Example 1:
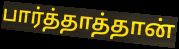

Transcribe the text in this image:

பார்த்தாத்தான்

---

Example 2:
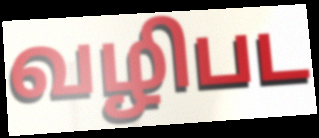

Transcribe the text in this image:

வழிபட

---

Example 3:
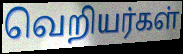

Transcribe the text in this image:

வெறியர்கள்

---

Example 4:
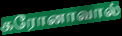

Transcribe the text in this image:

கரோனாவால்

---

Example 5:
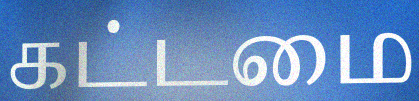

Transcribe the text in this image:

கட்டமை